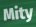
Mity